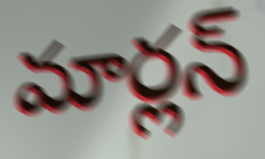
మార్లన్